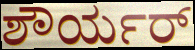
ಶೌರ್ಯರ್